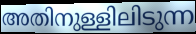
അതിനുള്ളിലിടുന്ന